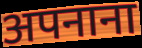
अपनाना